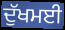
ਦੁੱਖਮਈ